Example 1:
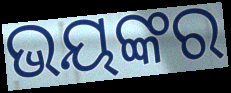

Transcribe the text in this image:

ଭୟଙ୍କର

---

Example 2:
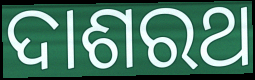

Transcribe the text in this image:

ଦାଶରଥ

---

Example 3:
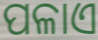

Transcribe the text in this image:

ପଳାଏ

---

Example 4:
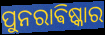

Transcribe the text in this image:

ପୁନରାଵିଷ୍କାର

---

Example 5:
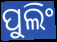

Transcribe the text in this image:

ପୁଲିଂ